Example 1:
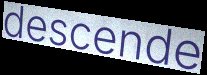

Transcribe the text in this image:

descende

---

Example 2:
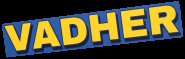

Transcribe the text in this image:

VADHER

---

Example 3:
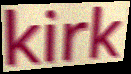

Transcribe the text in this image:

kirk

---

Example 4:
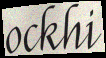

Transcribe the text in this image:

ockhi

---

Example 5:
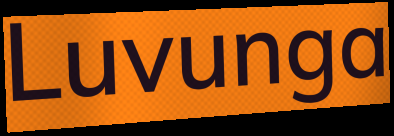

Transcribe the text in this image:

Luvunga